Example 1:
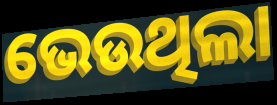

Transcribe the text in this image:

ଭେଉଥିଲା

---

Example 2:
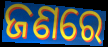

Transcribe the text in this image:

ଜଣରେ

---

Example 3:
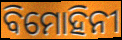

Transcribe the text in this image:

ବିମୋହିନୀ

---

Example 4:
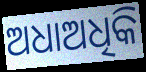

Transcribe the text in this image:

ଅଧାଅଧିକି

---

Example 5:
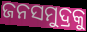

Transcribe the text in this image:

ଜନସମୁଦ୍ରକୁ